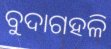
ବୁଦାଗହଳି